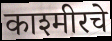
काश्मीरचे